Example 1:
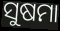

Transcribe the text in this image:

ସୁଷମା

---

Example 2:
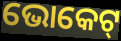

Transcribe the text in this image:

ଭୋକେଟ୍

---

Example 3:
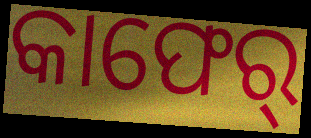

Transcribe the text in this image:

କାଫେର୍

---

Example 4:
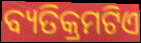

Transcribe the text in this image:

ବ୍ୟତିକ୍ରମଟିଏ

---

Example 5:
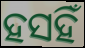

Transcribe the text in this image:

ହସହିଁ